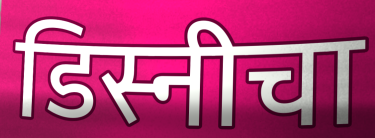
डिस्नीचा